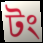
টং